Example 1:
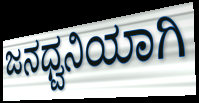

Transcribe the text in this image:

ಜನಧ್ವನಿಯಾಗಿ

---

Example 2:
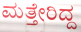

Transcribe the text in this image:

ಮತ್ತೇರಿದ್ದ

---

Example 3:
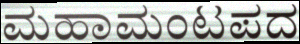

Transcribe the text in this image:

ಮಹಾಮಂಟಪದ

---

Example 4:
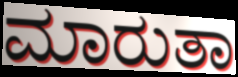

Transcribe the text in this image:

ಮಾರುತಾ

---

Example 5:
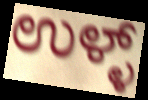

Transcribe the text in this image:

ಉಳ್ಳ್